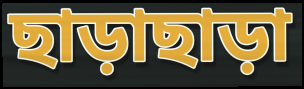
ছাড়াছাড়া